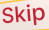
Skip